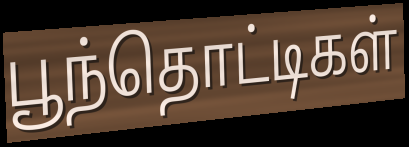
பூந்தொட்டிகள்